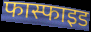
फास्फाइड